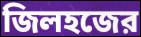
জিলহজের